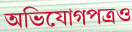
অভিযোগপত্রও